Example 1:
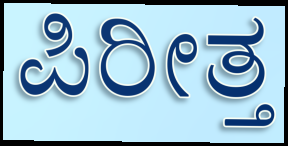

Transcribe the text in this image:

ಪಿರೀತ್ತ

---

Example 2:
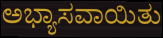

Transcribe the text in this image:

ಅಭ್ಯಾಸವಾಯಿತು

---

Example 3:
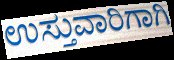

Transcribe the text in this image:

ಉಸ್ತುವಾರಿಗಾಗಿ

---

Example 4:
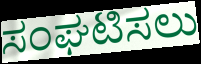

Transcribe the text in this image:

ಸಂಘಟಿಸಲು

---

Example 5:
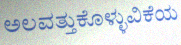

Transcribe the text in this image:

ಅಲವತ್ತುಕೊಳ್ಳುವಿಕೆಯ